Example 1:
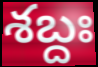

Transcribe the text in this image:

శబ్దః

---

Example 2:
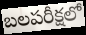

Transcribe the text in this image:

బలపరీక్షలో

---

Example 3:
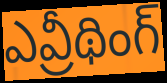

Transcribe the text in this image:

ఎవ్రీథింగ్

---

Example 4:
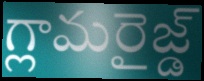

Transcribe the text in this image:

గ్లామరైజ్డ్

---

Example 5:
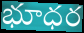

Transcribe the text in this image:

భూధర